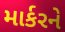
માર્કરને